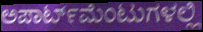
ಅಪಾರ್ಟ್‌ಮೆಂಟುಗಳಲ್ಲಿ